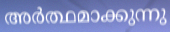
അർത്ഥമാക്കുന്നു